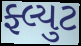
ફ્લ્યુટ